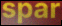
spar